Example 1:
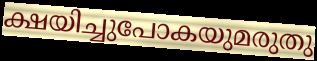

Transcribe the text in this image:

ക്ഷയിച്ചുപോകയുമരുതു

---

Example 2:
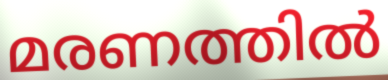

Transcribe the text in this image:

മരണത്തിൽ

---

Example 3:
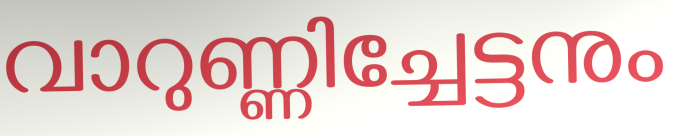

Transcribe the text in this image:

വാറുണ്ണിച്ചേട്ടനും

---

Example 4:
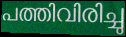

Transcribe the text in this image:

പത്തിവിരിച്ചു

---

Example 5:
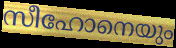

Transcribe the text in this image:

സീഹോനെയും